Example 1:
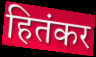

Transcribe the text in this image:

हितंकर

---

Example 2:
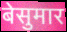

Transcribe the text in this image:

बेसुमार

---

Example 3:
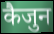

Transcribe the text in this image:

कैजुन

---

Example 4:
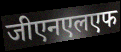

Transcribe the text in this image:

जीएनएलएफ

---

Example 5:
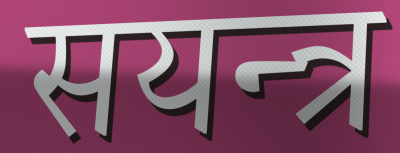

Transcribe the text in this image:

सयन्त्र